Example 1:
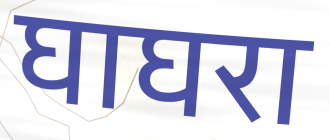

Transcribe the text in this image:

घाघरा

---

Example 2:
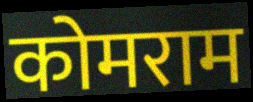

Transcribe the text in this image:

कोमराम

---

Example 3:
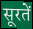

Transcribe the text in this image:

सूरतें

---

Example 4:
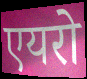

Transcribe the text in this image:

एयरो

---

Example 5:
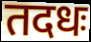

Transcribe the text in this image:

तदधः